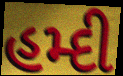
હમ્દી